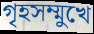
গৃহসম্মুখে